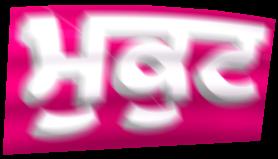
ਮੁਕੁਟ